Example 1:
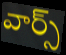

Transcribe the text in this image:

వార్స్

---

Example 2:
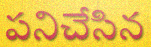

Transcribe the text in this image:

పనిచేసిన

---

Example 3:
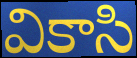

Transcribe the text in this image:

వికాసి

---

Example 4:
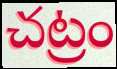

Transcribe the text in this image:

చట్రం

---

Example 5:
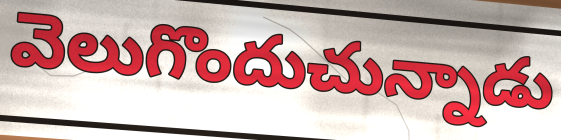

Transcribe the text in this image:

వెలుగొందుచున్నాడు